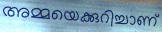
അമ്മയെക്കുറിച്ചാണ്